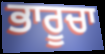
ਭਾਰੂਚਾ